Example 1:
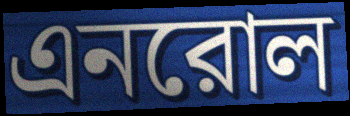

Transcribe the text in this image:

এনরোল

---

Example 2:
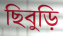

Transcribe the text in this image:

ছিবুড়ি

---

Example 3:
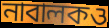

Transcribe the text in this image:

নাবালকও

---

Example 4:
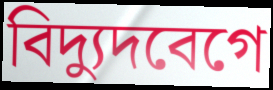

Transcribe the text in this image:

বিদ্যুদবেগে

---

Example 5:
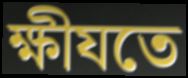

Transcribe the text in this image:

ক্ষীযতে